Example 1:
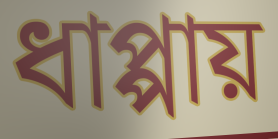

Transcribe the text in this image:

ধাপ্পায়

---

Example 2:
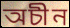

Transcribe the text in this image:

অচীন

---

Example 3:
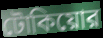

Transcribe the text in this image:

টোকিয়োর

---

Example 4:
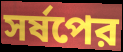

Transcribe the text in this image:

সর্ষপের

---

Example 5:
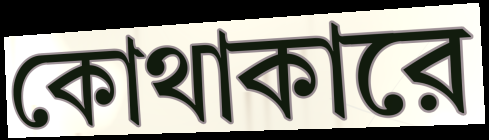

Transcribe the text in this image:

কোথাকারে